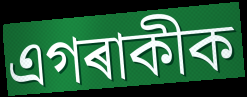
এগৰাকীক